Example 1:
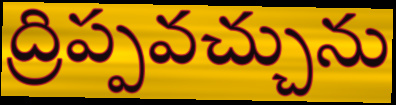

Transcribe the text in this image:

ద్రిప్పవచ్చును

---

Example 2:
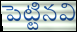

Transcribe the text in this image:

పెట్టినవి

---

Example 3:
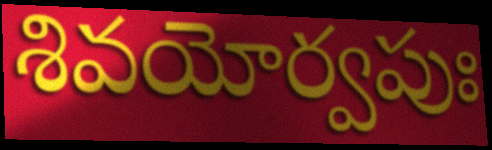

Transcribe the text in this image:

శివయోర్వపుః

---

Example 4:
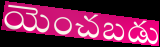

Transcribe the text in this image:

యెంచబడు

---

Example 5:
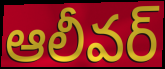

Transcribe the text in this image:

ఆలీవర్